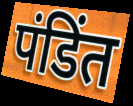
पंडिंत